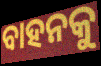
ବାହନକୁ